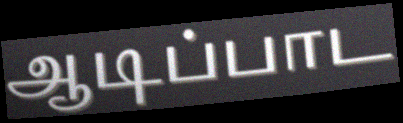
ஆடிப்பாட